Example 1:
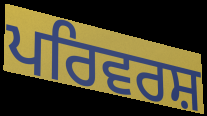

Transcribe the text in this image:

ਪਰਿਵਰਸ਼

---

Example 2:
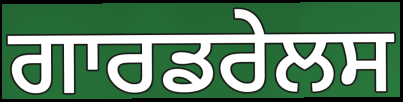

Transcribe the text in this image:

ਗਾਰਡਰੇਲਸ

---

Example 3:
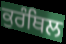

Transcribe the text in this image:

ਕੁਰੰਥਿਲ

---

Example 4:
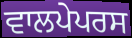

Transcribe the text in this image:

ਵਾਲਪੇਪਰਸ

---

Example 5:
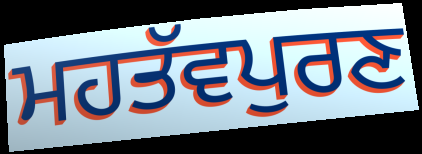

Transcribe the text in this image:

ਮਹਤੱਵਪੁਰਣ